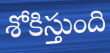
శోకిస్తుంది